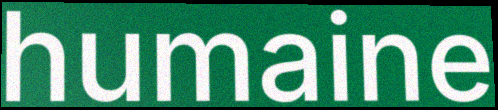
humaine